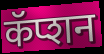
कॅप्शन